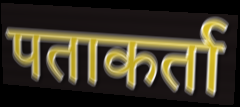
पताकर्ता